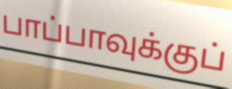
பாப்பாவுக்குப்